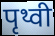
पृथ्‍वी